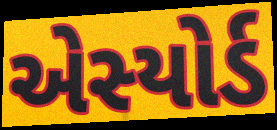
એસ્યોર્ડ